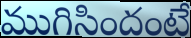
ముగిసిందంటే